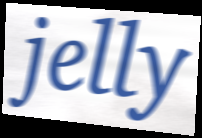
jelly